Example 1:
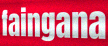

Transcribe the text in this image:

faingana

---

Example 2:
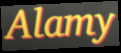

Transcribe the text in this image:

Alamy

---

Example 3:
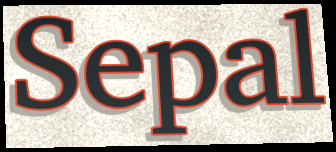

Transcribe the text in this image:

Sepal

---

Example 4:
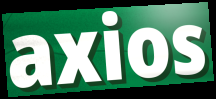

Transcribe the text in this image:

axios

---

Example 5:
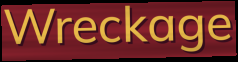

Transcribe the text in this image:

Wreckage